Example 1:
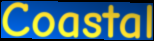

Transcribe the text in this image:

Coastal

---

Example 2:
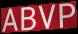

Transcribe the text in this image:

ABVP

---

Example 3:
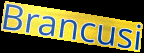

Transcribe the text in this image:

Brancusi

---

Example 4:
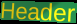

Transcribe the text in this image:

Header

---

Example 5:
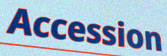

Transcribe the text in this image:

Accession